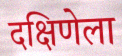
दक्षिणेला